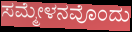
ಸಮ್ಮೇಳನವೊಂದು